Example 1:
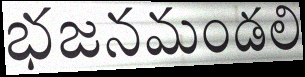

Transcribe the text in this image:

భజనమండలి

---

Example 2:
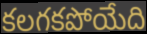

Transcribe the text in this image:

కలగకపోయేది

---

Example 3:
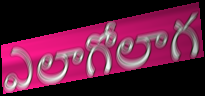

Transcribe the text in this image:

ఎలాగోలాగ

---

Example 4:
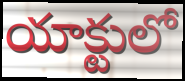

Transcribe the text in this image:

యాక్టులో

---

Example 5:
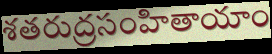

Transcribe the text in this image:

శతరుద్రసంహితాయాం